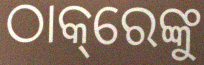
ଠାକ୍‌ରେଙ୍କୁ